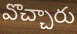
వొచ్చారు